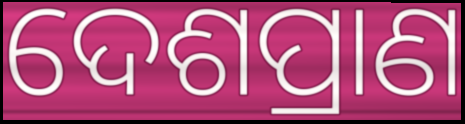
ଦେଶପ୍ରାଣ